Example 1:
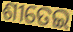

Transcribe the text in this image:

ଶୀତେଇ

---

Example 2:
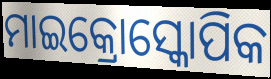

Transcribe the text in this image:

ମାଇକ୍ରୋସ୍କୋପିକ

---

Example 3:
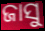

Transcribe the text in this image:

ଜାସୁ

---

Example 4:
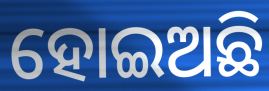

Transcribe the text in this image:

ହୋଇଅଛି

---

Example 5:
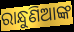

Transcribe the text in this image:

ରାନ୍ଧୁଣିଆଙ୍କ